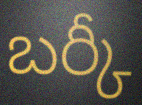
బర్కీ